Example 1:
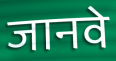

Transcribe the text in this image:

जानवे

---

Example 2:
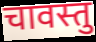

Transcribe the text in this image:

चावस्तु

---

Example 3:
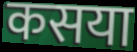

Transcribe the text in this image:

कसया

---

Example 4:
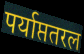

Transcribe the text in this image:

पर्याप्ततरल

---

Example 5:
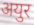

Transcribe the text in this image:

अयुर